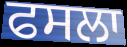
ਫਸਲਾ